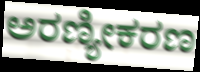
ಅರಣ್ಯೀಕರಣ